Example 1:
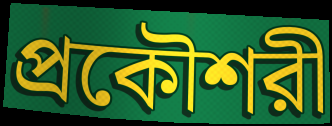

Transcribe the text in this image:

প্রকৌশরী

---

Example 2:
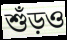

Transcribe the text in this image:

শুঁড়ও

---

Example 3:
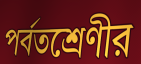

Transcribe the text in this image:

পর্বতশ্রেণীর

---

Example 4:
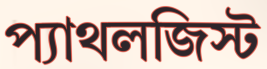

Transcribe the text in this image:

প্যাথলজিস্ট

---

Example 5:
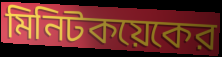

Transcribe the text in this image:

মিনিটকয়েকের